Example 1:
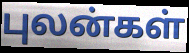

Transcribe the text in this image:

புலன்கள்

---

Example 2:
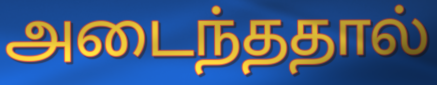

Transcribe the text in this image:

அடைந்ததால்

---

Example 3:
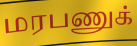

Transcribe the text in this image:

மரபணுக்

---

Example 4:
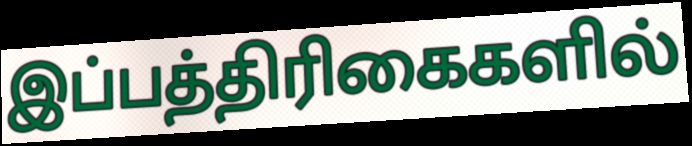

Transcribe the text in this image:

இப்பத்திரிகைகளில்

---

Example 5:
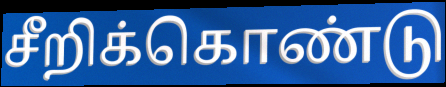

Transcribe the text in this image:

சீறிக்கொண்டு